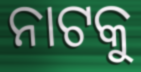
ନାଟକୁ